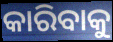
କାରିବାକୁ